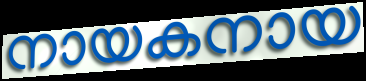
നായകനായ